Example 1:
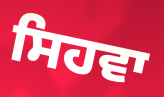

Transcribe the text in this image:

ਸਿਹਵਾ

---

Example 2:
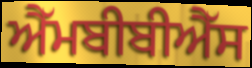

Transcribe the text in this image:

ਐੱਮਬੀਬੀਐੱਸ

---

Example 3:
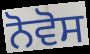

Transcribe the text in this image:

ਨੋਵੋਸ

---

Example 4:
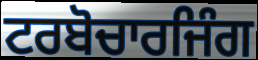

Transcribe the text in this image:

ਟਰਬੋਚਾਰਜਿੰਗ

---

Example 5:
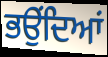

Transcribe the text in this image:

ਭਉਂਦਿਆਂ